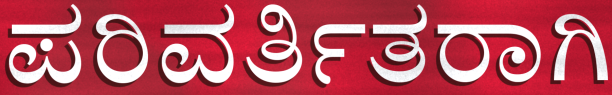
ಪರಿವರ್ತಿತರಾಗಿ